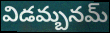
విడమ్బనమ్